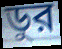
ডুর